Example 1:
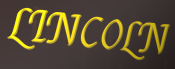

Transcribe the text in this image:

LINCOLN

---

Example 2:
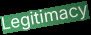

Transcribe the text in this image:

Legitimacy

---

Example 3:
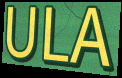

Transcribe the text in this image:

ULA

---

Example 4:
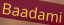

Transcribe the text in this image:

Baadami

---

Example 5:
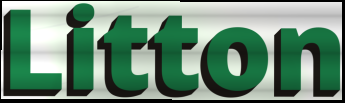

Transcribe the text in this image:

Litton